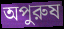
অপুরুষ